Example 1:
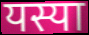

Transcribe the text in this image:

यस्या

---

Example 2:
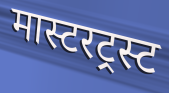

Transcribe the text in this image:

मास्टरट्रस्ट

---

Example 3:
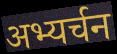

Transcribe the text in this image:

अभ्यर्चन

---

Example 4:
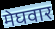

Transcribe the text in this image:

मेघवार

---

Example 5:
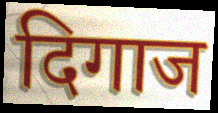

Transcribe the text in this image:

दिगाज